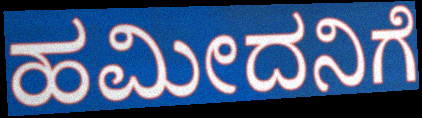
ಹಮೀದನಿಗೆ